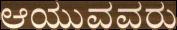
ಆಯುವವರು